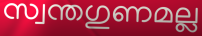
സ്വന്തഗുണമല്ല